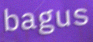
bagus